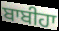
ਬਾਬੀਹਾ